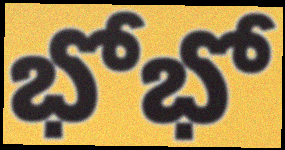
భోభో